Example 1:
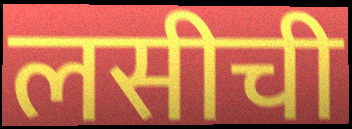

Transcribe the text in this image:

लसीची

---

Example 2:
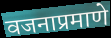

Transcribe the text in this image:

वजनाप्रमाणे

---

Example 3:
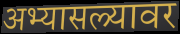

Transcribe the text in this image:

अभ्यासल्यावर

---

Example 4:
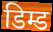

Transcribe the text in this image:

डिम्ड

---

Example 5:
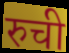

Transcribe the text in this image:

रुची